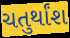
ચતુર્થાંશ